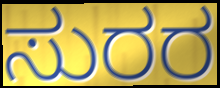
ಸುರರ